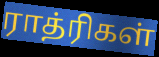
ராத்ரிகள்